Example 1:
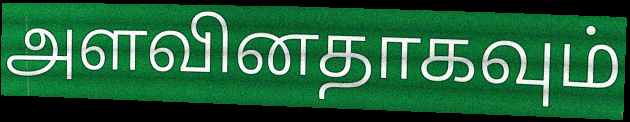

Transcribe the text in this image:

அளவினதாகவும்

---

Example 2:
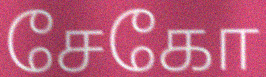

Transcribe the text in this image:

சேகோ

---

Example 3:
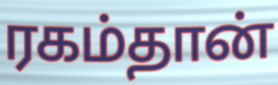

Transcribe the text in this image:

ரகம்தான்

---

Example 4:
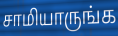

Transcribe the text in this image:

சாமியாருங்க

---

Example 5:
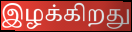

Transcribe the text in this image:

இழக்கிறது